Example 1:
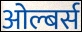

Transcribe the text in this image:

ओल्बर्स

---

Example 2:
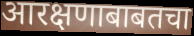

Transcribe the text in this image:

आरक्षणाबाबतचा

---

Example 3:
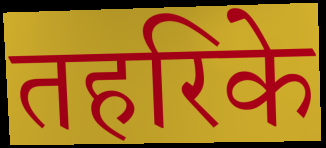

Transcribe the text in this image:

तहरिके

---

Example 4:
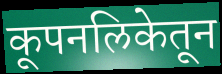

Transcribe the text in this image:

कूपनलिकेतून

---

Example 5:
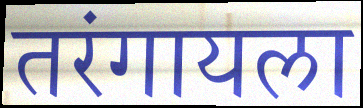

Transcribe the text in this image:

तरंगायला